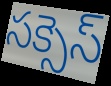
సక్సెస్